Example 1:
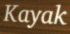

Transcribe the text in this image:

Kayak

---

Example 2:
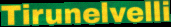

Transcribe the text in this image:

Tirunelvelli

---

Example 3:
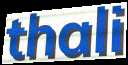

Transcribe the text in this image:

thali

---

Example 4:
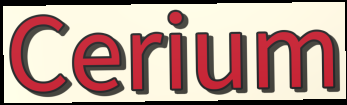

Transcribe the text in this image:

Cerium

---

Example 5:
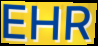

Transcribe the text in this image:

EHR